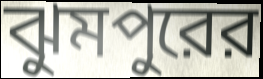
ঝুমপুরের